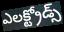
ఎలక్ట్రోడ్స్